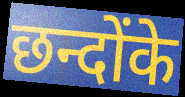
छन्दोंके